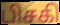
பிசகி